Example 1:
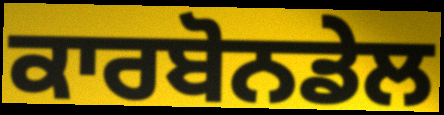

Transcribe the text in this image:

ਕਾਰਬੋਨਡੇਲ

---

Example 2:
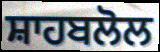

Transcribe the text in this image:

ਸ਼ਾਹਬਲੋਲ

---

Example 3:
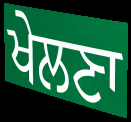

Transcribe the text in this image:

ਖੇਲਣਾ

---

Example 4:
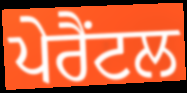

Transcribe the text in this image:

ਪੇਰੈਂਟਲ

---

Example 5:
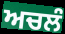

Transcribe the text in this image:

ਅਚਲੰ